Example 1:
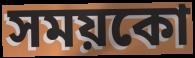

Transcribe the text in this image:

সময়কো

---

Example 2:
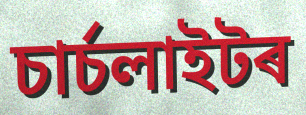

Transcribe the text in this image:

চাৰ্চলাইটৰ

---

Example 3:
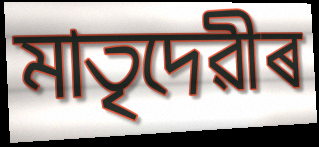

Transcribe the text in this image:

মাতৃদেৱীৰ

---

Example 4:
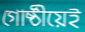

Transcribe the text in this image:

গোষ্ঠীয়েই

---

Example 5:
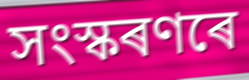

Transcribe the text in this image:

সংস্কৰণৰে